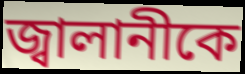
জ্বালানীকে